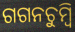
ଗଗନଚୁମ୍ବି